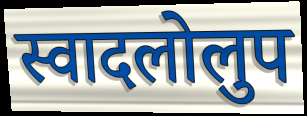
स्वादलोलुप